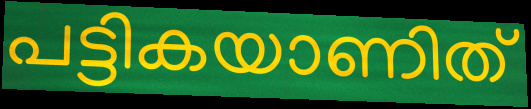
പട്ടികയാണിത്